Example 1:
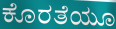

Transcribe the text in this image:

ಕೊರತೆಯೂ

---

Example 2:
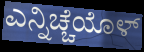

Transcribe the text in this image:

ಎನ್ನಿಚ್ಚೆಯೊಳ್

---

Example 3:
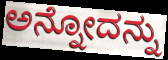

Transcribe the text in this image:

ಅನ್ನೋದನ್ನು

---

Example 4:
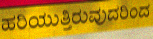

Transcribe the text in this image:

ಹರಿಯುತ್ತಿರುವುದರಿಂದ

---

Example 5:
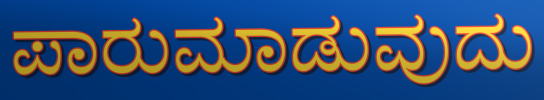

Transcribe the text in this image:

ಪಾರುಮಾಡುವುದು